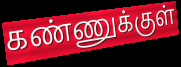
கண்ணுக்குள்